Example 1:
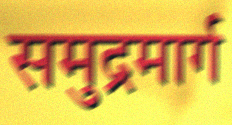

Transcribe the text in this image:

समुद्रमार्ग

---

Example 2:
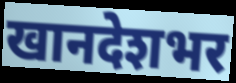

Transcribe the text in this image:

खानदेशभर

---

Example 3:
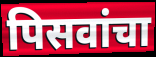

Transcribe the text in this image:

पिसवांचा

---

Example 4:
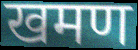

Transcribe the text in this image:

खमण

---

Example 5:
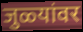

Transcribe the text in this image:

जुळ्यांवर